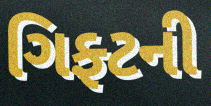
ગિફ્ટની